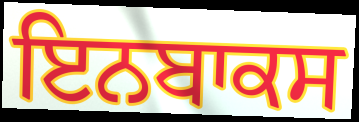
ਇਨਬਾਕਸ